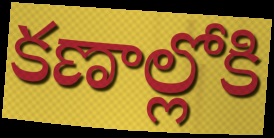
కణాల్లోకి